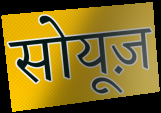
सोयूज़